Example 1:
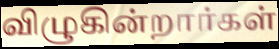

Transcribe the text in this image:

விழுகின்றார்கள்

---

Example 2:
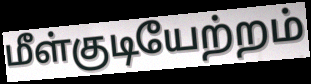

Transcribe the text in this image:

மீள்குடியேற்றம்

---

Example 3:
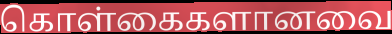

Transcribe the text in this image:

கொள்கைகளானவை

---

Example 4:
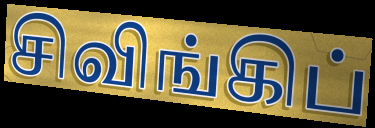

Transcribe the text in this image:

சிவிங்கிப்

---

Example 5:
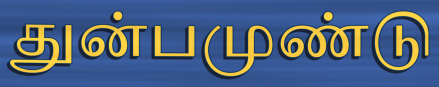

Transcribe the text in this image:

துன்பமுண்டு